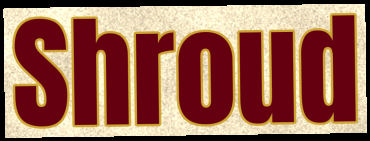
Shroud